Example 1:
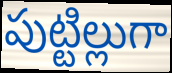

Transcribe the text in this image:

పుట్టిల్లుగా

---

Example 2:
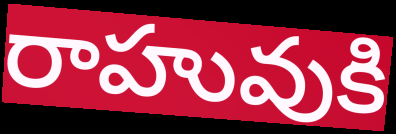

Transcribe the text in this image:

రాహువుకి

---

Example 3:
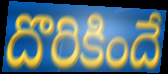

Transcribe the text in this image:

దొరికిందే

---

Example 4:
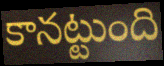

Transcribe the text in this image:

కానట్టుంది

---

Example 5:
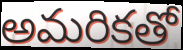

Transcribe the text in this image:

అమరికతో